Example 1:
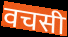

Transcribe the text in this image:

वचसी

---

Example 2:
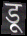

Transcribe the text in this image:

डू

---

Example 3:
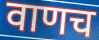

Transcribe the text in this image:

वाणच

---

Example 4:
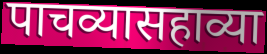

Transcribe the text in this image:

पाचव्यासहाव्या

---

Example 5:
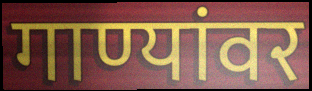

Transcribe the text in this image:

गाण्यांवर